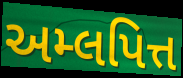
અમ્લપિત્ત